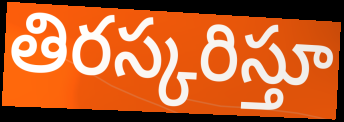
తిరస్కరిస్తూ